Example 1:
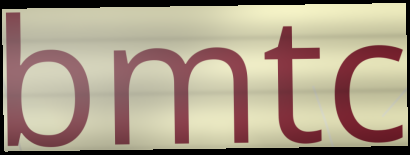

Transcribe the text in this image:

bmtc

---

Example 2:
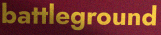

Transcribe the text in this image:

battleground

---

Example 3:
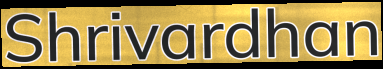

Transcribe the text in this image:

Shrivardhan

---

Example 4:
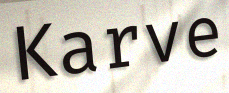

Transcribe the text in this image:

Karve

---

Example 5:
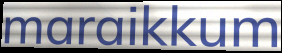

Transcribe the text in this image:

maraikkum